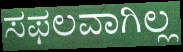
ಸಫಲವಾಗಿಲ್ಲ